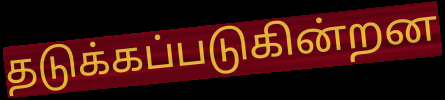
தடுக்கப்படுகின்றன